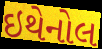
ઇથેનોલ